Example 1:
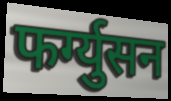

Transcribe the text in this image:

फर्ग्युसन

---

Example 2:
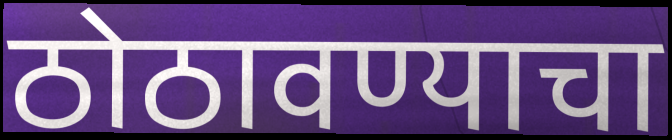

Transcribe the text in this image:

ठोठावण्याचा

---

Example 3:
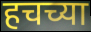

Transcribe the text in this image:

हचच्या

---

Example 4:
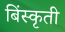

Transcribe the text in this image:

बिंस्कृती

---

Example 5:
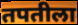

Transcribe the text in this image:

तपतीला